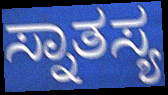
ಸ್ನಾತಸ್ಯ